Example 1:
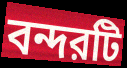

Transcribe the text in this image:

বন্দরটি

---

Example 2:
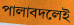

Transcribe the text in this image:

পালাবদলেই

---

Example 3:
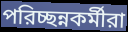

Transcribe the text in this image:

পরিচ্ছন্নকর্মীরা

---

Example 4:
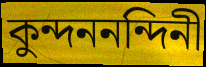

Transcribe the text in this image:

কুন্দননন্দিনী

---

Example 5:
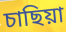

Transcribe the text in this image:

চাছিয়া